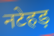
नटेहड़